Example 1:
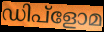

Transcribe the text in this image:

ഡിപ്ളോമ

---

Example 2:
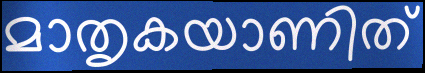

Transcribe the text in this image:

മാതൃകയാണിത്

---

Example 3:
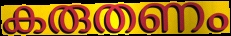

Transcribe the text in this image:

കരുതണം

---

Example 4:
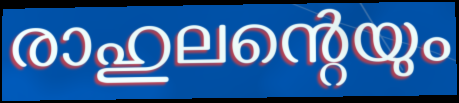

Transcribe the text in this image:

രാഹുലന്റെയും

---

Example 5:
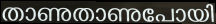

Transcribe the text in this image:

താണുതാണുപോയി